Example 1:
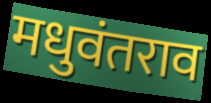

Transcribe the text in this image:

मधुवंतराव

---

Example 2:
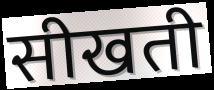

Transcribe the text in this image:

सीखती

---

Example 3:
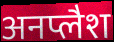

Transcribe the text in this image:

अनप्लैश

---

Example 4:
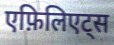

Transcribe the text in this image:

एफ़िलिएट्स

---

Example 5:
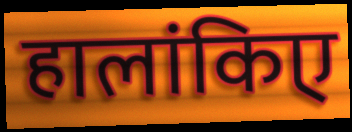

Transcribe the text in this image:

हालांकिए